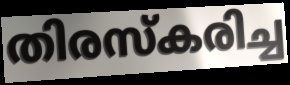
തിരസ്കരിച്ച